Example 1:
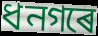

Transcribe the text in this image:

ধনগৰে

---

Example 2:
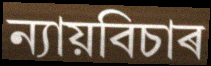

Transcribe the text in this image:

ন্যায়বিচাৰ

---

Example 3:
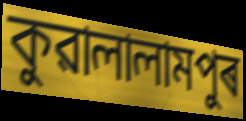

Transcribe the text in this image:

কুৱালালামপুৰ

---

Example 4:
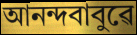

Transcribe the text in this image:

আনন্দবাবুৱে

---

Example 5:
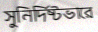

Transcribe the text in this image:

সুনিৰ্দিষ্টভাৱে